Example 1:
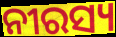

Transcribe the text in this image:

ନୀରସ୍ୟ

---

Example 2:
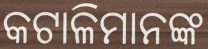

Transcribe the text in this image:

କଟାଳିମାନଙ୍କ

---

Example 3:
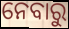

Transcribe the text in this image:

ନେବାରୁ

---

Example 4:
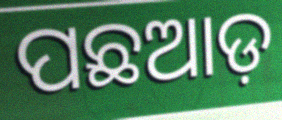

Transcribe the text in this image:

ପଛଆଡ଼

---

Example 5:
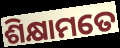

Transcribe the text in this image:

ଶିକ୍ଷାମତେ